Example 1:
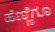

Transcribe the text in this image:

ಹೆಣ್ಣಿಗೂ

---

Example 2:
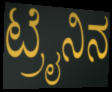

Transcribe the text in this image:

ಟ್ರೈನಿನ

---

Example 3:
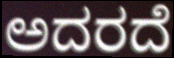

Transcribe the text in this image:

ಅದರದೆ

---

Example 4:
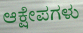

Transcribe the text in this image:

ಆಕ್ಷೇಪಗಳು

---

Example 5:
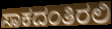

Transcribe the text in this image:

ಸಾಕದಂತಿರಲಿ